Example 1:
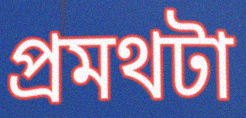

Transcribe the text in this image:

প্রমথটা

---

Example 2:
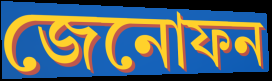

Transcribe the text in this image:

জেনোফন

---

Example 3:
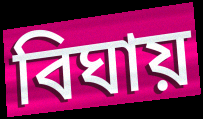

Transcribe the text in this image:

বিঘায়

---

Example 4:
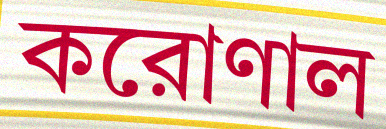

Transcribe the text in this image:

করোণাল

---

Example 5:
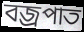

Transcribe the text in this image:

বজ্রপাত